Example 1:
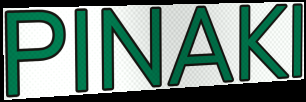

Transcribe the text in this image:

PINAKI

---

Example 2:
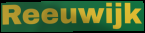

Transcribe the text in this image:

Reeuwijk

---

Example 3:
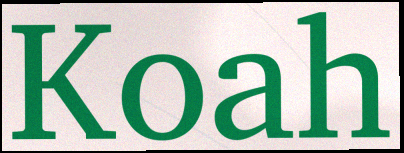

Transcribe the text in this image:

Koah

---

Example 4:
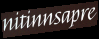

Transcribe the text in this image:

nitinnsapre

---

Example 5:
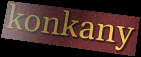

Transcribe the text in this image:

konkany